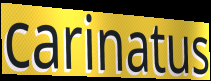
carinatus